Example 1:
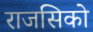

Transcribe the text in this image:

राजसिको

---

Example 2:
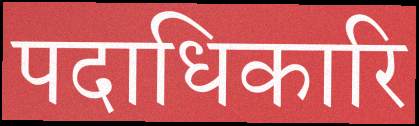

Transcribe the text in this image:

पदाधिकारि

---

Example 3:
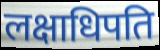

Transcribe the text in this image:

लक्षाधिपति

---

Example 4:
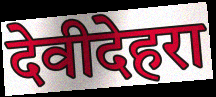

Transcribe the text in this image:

देवीदेहरा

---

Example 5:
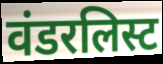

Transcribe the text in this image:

वंडरलिस्ट